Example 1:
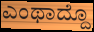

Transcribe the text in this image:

ಎಂಥಾದ್ದೊ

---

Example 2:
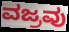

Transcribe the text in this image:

ವಜ್ರವು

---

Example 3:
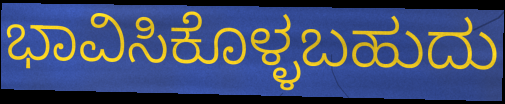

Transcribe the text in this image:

ಭಾವಿಸಿಕೊಳ್ಳಬಹುದು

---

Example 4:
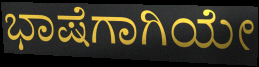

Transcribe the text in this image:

ಭಾಷೆಗಾಗಿಯೇ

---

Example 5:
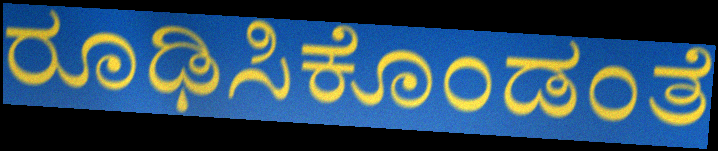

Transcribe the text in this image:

ರೂಢಿಸಿಕೊಂಡಂತೆ